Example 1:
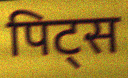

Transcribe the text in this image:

पिट्स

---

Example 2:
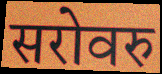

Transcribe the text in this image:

सरोवरु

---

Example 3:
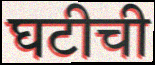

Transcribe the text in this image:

घटीची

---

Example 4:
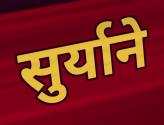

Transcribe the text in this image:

सुर्याने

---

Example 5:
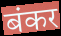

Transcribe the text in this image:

बंकर